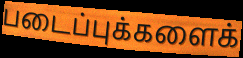
படைப்புக்களைக்